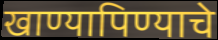
खाण्यापिण्याचे